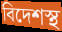
বিদেশস্থ